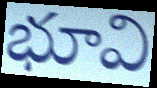
భూవి